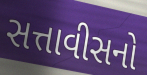
સત્તાવીસનો